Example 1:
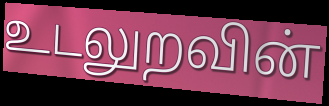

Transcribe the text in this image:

உடலுறவின்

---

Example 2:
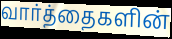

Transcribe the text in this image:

வார்த்தைகளின்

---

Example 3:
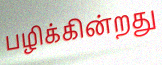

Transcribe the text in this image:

பழிக்கின்றது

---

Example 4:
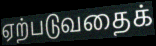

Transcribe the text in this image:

ஏற்படுவதைக்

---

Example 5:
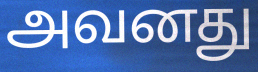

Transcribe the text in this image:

அவனது